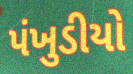
પંખુડીયો